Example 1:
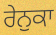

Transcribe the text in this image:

ਰੇਨੁਕਾ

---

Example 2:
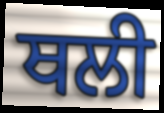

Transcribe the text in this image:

ਥਲੀ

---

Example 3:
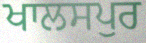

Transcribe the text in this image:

ਖਾਲਸਪੁਰ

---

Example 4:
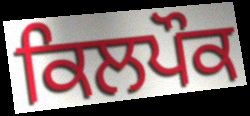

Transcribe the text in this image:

ਕਿਲਪੌਕ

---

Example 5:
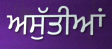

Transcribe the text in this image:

ਅਸੁੱਤੀਆਂ